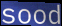
sood